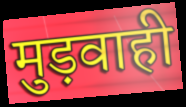
मुड़वाही